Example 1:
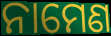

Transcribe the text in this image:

ନାମେଣ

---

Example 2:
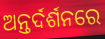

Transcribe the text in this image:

ଅନ୍ତର୍ଦର୍ଶନରେ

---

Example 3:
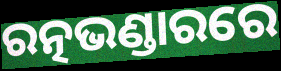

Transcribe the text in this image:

ରତ୍ନଭଣ୍ଡାରରେ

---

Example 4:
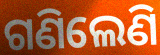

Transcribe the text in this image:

ଗଣିଲେଣି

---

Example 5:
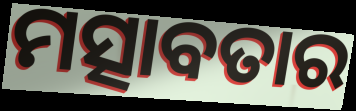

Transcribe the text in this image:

ମତ୍ସାବତାର